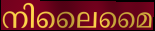
നിലൈമൈ